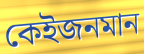
কেইজনমান